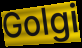
Golgi